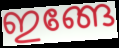
ഇങ്ങേ